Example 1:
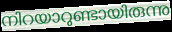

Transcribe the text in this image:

നിറയാറുണ്ടായിരുന്നു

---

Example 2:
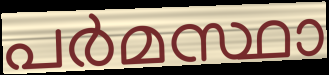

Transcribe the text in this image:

പർമസ്ഥാ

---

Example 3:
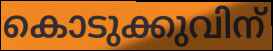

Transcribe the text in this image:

കൊടുക്കുവിന്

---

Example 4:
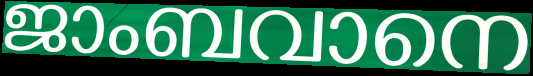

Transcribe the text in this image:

ജാംബവാനെ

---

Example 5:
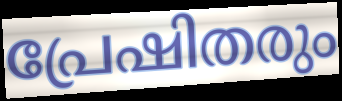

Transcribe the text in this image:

പ്രേഷിതരും